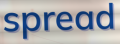
spread